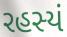
રહસ્યં